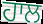
ਹਾਲ